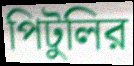
পিটুলির